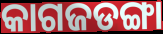
କାଗଜଡଙ୍ଗା